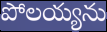
పోలయ్యను